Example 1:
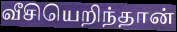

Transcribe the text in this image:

வீசியெறிந்தான்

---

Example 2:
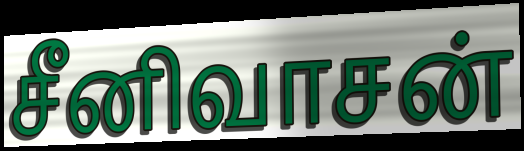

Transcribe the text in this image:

சீனிவாசன்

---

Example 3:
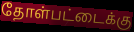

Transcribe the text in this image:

தோள்பட்டைக்கு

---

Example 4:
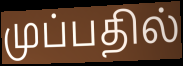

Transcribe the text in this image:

முப்பதில்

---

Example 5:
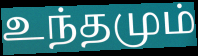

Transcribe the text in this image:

உந்தமும்